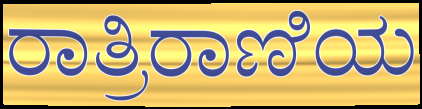
ರಾತ್ರಿರಾಣಿಯ